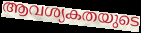
ആവശ്യകതയുടെ